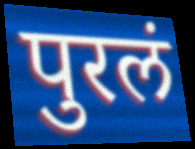
पुरलं